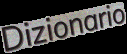
Dizionario